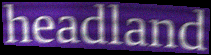
headland